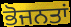
ਭੋਜਨਤਾਂ